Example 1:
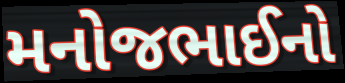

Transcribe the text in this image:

મનોજભાઈનો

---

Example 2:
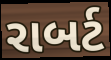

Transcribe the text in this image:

રાબર્ટ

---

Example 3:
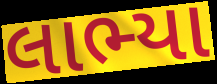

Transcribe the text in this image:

લાભ્યા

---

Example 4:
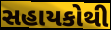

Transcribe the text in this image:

સહાયકોથી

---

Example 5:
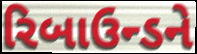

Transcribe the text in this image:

રિબાઉન્ડને